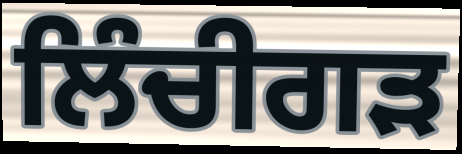
ਲਿੰਚੀਗੜ